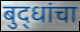
बुद्धांचा